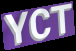
YCT